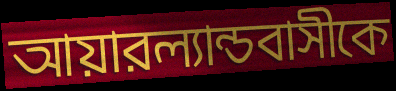
আয়ারল্যান্ডবাসীকে